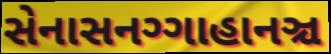
સેનાસનગ્ગાહાનઞ્ચ